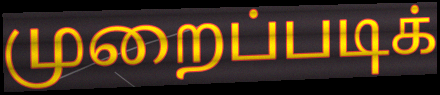
முறைப்படிக்